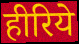
हीरिये